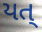
યત્